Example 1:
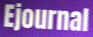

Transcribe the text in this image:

Ejournal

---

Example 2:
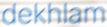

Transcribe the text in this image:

dekhlam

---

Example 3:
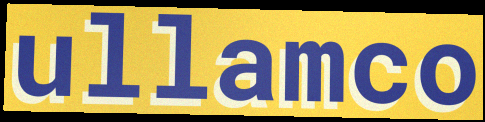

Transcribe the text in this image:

ullamco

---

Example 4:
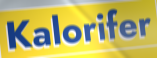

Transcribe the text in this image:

Kalorifer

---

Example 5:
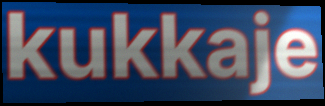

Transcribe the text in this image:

kukkaje